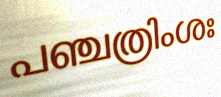
പഞ്ചത്രിംശഃ